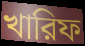
খারিফ